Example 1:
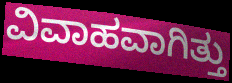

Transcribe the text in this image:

ವಿವಾಹವಾಗಿತ್ತು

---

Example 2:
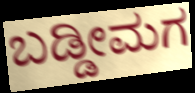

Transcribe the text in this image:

ಬಡ್ಡೀಮಗ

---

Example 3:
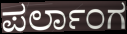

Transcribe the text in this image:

ಪರ್ಲಾಂಗ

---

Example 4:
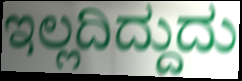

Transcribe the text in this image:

ಇಲ್ಲದಿದ್ದುದು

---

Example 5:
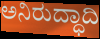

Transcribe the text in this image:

ಅನಿರುದ್ಧಾದಿ